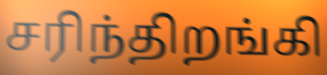
சரிந்திறங்கி